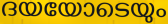
ദയയോടെയും